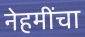
नेहमींचा